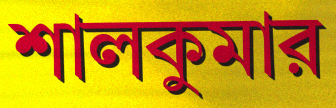
শালকুমার